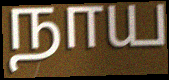
நாய